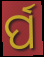
ର୍ପ